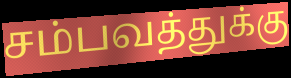
சம்பவத்துக்கு